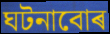
ঘটনাবোৰ